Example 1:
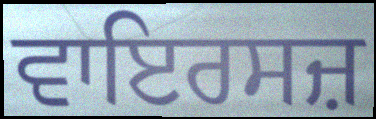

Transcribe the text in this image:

ਵਾਇਰਸਜ਼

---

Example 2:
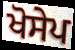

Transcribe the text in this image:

ਖੋਸੇਪ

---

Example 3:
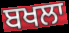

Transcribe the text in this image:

ਬਖਲਾ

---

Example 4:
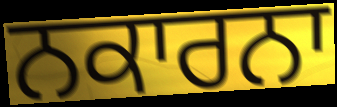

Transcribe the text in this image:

ਨਕਾਰਨਾ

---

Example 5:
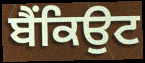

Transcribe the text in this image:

ਬੈਂਕਿਉਟ